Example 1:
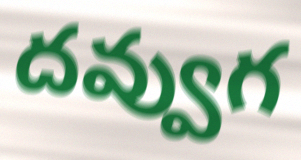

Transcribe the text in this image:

దవ్వుగ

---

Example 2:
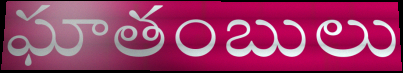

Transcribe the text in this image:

ఘాతంబులు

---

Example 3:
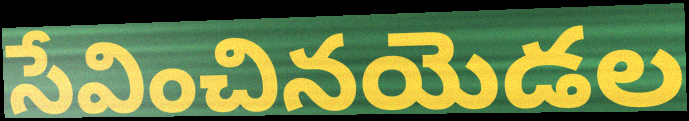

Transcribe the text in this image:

సేవించినయెడల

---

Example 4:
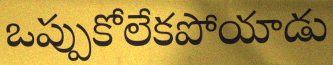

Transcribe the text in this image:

ఒప్పుకోలేకపోయాడు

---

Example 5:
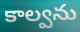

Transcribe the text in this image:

కాల్వను